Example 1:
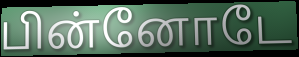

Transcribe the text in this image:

பின்னோடே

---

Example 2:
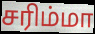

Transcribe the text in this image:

சரிம்மா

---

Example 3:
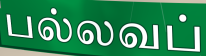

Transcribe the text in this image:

பல்லவப்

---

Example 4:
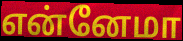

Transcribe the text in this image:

என்னேமா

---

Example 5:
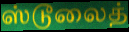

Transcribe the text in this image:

ஸ்டூலைத்